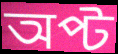
অপ্ট